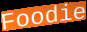
Foodie